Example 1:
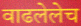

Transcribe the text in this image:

वाढलेलेच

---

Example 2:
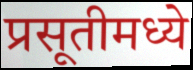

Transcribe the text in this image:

प्रसूतीमध्ये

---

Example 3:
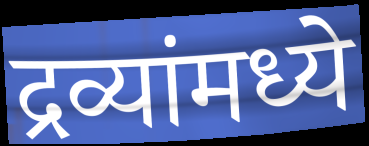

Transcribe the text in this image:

द्रव्यांमध्ये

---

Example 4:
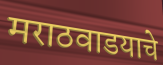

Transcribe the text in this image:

मराठवाडयाचे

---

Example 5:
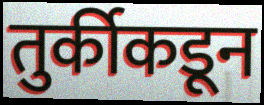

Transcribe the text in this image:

तुर्कीकडून